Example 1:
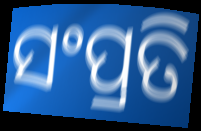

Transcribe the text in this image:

ସଂପ୍ରତି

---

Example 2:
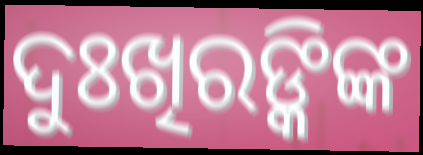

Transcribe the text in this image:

ଦୁଃଖିରଙ୍କିଙ୍କ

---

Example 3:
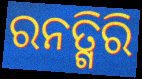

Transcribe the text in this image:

ରନତ୍ଗିରି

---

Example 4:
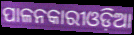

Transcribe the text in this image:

ପାଳନକାରୀଓଡ଼ିଆ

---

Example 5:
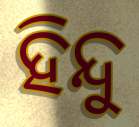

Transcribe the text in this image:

ହିନ୍ଦୁ